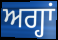
ਅਗ੍ਹਾਂ